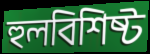
হুলবিশিষ্ট